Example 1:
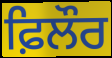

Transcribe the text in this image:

ਫ਼ਿਲੌਰ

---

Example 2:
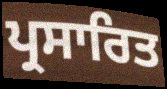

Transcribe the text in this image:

ਪ੍ਰਸਾਰਿਤ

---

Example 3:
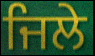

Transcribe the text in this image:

ਜਿਲੇ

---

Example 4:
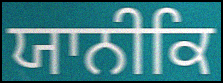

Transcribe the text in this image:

ਯਾਨੀਕਿ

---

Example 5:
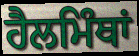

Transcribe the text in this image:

ਹੈਲਮਿੰਥਾਂ